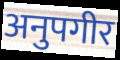
अनुपगीर